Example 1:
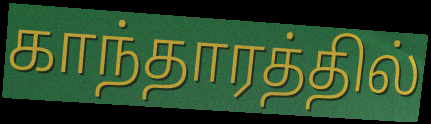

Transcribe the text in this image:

காந்தாரத்தில்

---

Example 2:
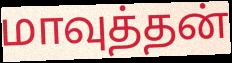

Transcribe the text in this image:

மாவுத்தன்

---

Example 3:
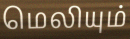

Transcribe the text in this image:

மெலியும்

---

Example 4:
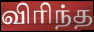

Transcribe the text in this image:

விரிந்த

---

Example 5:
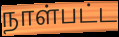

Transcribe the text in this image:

நாள்பட்ட